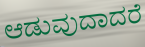
ಆಡುವುದಾದರೆ